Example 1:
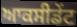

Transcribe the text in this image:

ਆਕਸੀਡੇਂਟ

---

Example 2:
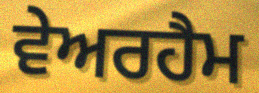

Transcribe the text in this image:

ਵੇਅਰਹੈਮ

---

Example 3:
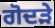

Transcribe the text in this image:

ਗੋਦੜੇ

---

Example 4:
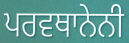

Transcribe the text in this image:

ਪਰਵਥਾਨੇਨੀ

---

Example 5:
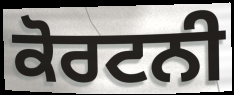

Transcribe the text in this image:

ਕੋਰਟਨੀ